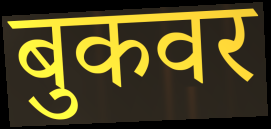
बुकवर